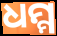
ଧମ୍ମ